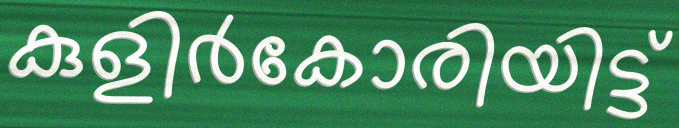
കുളിർകോരിയിട്ട്